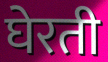
घेरती